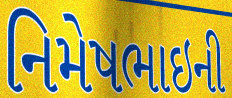
નિમેષભાઇની